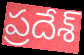
ప్రదేశ్